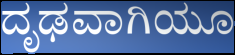
ದೃಢವಾಗಿಯೂ